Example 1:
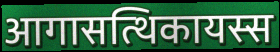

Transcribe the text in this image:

आगासत्थिकायस्स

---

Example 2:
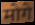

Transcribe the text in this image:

मोगे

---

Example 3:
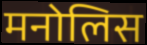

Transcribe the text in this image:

मनोलिस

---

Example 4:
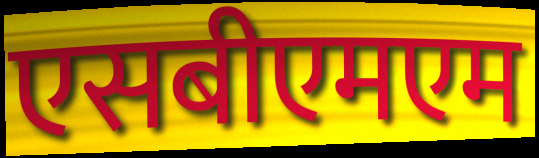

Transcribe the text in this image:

एसबीएमएम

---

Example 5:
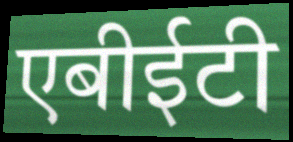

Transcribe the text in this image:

एबीईटी